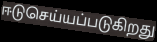
ஈடுசெய்யப்படுகிறது